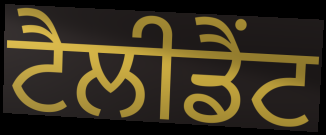
ਟੈਲੀਡੈਂਟ